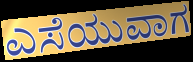
ಎಸೆಯುವಾಗ